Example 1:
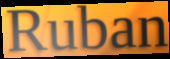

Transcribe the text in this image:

Ruban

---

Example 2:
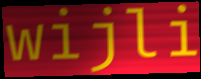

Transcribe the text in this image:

wijli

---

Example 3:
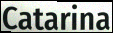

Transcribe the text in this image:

Catarina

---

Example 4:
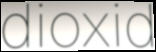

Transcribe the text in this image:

dioxid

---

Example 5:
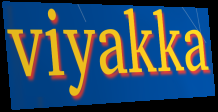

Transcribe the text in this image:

viyakka